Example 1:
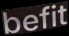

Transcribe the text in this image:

befit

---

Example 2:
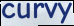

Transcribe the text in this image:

curvy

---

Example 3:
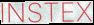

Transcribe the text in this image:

INSTEX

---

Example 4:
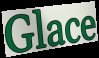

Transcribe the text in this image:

Glace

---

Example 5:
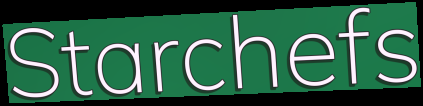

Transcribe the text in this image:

Starchefs